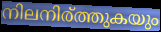
നിലനിര്ത്തുകയും